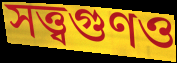
সত্ত্বগুণও